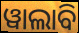
ୱାଲାବି